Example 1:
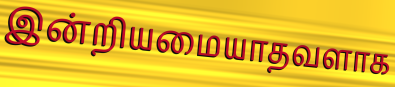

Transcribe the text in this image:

இன்றியமையாதவளாக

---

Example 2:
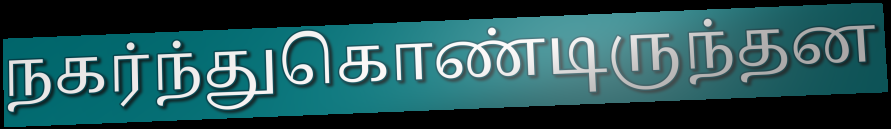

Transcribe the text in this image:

நகர்ந்துகொண்டிருந்தன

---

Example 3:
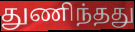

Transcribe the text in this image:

துணிந்தது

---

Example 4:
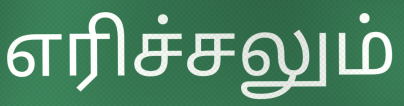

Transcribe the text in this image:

எரிச்சலும்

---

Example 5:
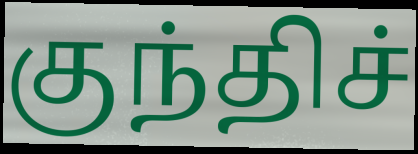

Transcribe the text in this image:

குந்திச்